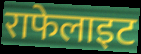
राफेलाइट